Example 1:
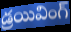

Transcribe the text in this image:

డ్రయివింగ్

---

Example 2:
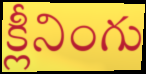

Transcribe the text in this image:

క్లీనింగు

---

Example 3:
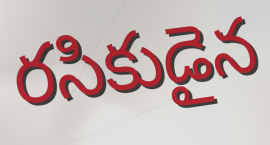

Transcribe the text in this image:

రసికుడైన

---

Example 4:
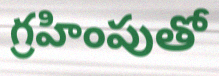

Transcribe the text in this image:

గ్రహింపుతో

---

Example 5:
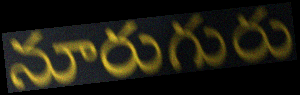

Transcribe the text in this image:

నూరుగురు